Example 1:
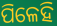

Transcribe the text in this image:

ପିଳେହି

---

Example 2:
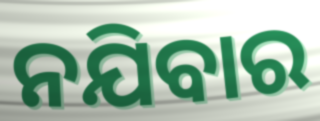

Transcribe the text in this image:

ନଯିବାର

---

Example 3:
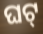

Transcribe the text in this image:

ଘଟ୍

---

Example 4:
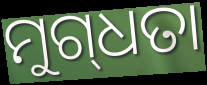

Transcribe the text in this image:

ମୁଗ୍‌ଧତା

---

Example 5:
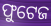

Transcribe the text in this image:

ଫୁଟେଜ